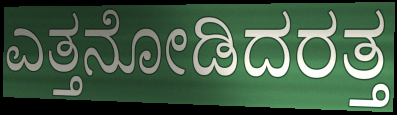
ಎತ್ತನೋಡಿದರತ್ತ